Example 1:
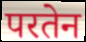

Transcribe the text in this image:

परतेन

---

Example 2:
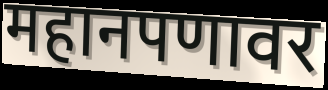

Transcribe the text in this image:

महानपणावर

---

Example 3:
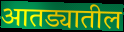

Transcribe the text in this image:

आतड्यातील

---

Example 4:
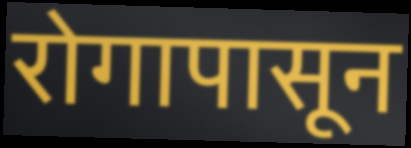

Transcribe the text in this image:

रोगापासून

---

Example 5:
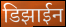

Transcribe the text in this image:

डिझाईन